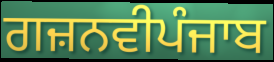
ਗਜ਼ਨਵੀਪੰਜਾਬ